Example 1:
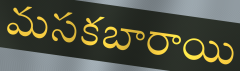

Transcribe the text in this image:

మసకబారాయి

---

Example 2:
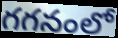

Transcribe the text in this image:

గగనంలో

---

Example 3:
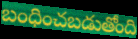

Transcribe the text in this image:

బంధించబడుతోంది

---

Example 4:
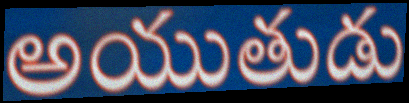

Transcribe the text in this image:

అయుతుడు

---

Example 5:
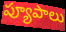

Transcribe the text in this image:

ప్యూపాలు